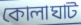
কোলাঘাট